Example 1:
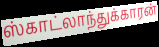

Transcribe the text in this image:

ஸ்காட்லாந்துக்காரன்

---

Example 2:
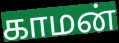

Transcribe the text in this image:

காமன்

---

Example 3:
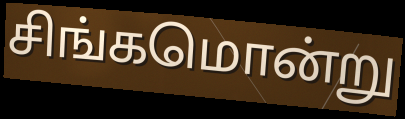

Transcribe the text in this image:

சிங்கமொன்று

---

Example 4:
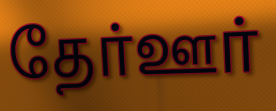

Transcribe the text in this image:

தேர்ஊர்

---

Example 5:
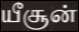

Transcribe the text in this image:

யீசூன்